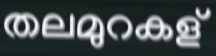
തലമുറകള്